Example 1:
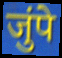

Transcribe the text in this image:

जुंपे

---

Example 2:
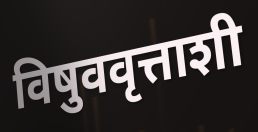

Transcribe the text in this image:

विषुववृत्ताशी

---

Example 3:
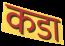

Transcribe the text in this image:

कडा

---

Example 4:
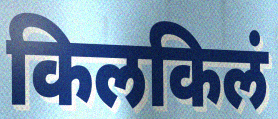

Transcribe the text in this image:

किलकिलं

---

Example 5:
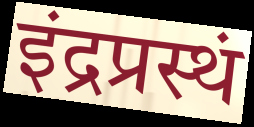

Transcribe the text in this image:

इंद्रप्रस्थं